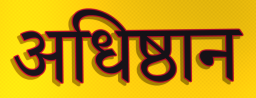
अधिष्ठान